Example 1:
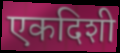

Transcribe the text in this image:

एकदिशी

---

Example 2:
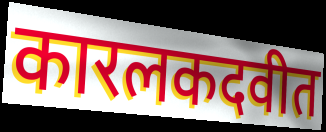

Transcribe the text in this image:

कारलकदवीत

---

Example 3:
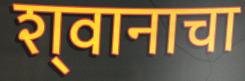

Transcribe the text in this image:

श्वानाचा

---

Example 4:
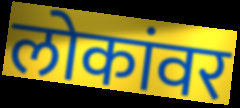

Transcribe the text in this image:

लोकांवर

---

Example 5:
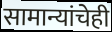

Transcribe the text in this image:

सामान्यांचेही